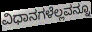
ವಿಧಾನಗಳೆಲ್ಲವನ್ನೂ